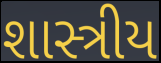
શાસ્ત્રીય